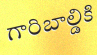
గారిబాల్డికి